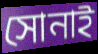
সোনাই